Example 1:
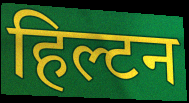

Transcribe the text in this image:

हिल्टन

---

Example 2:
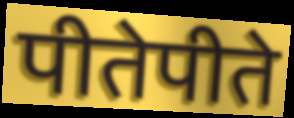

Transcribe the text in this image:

पीतेपीते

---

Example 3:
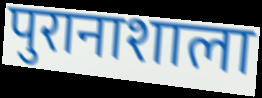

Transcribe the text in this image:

पुरानाशाला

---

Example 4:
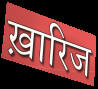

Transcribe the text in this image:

ख़ारिज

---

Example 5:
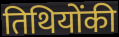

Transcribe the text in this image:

तिथियोंकी